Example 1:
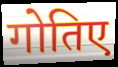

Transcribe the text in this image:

गोतिए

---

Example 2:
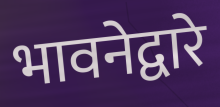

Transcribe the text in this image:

भावनेद्वारे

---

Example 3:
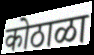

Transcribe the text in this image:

कोठाळा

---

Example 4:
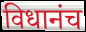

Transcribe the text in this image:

विधानंच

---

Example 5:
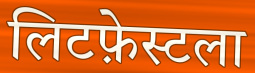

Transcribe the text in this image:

लिटफ़ेस्टला